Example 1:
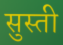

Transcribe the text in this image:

सुस्ती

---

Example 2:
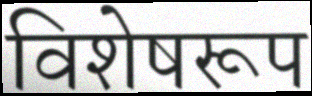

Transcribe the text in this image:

विशेषरूप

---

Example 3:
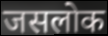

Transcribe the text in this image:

जसलोक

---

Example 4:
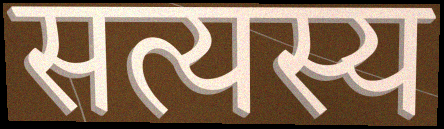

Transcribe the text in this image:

सत्यस्य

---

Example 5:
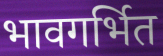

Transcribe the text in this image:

भावगर्भित